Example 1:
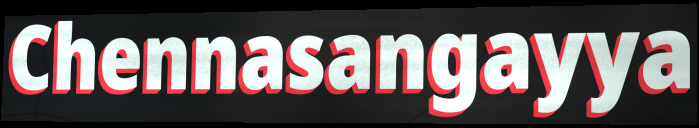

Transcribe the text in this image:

Chennasangayya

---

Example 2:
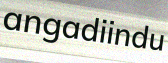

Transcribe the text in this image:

angadiindu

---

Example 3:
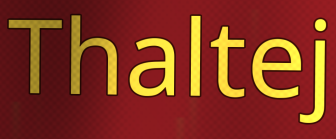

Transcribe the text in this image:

Thaltej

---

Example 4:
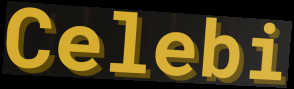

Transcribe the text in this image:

Celebi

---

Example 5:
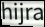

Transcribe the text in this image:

hijra